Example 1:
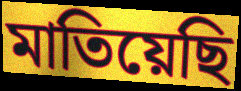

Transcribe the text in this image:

মাতিয়েছি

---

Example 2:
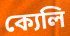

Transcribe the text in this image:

ক্যেলি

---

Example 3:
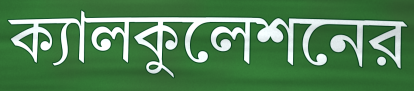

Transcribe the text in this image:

ক্যালকুলেশনের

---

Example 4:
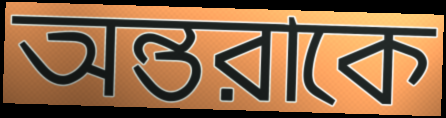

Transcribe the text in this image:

অন্তরাকে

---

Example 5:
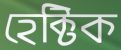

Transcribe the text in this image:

হেক্টিক